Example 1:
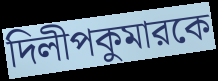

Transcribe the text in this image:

দিলীপকুমারকে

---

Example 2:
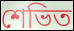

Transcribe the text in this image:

শেভিত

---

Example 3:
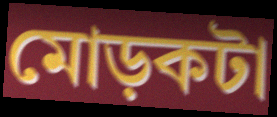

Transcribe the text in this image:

মোড়কটা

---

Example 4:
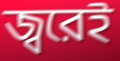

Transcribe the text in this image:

জ্বরেই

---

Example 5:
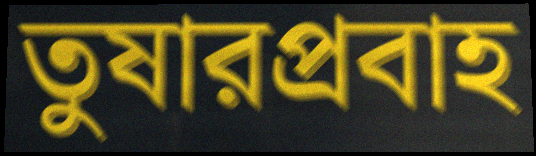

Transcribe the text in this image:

তুষারপ্রবাহ